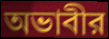
অভাবীর